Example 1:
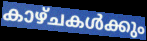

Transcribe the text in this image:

കാഴ്ചകൾക്കും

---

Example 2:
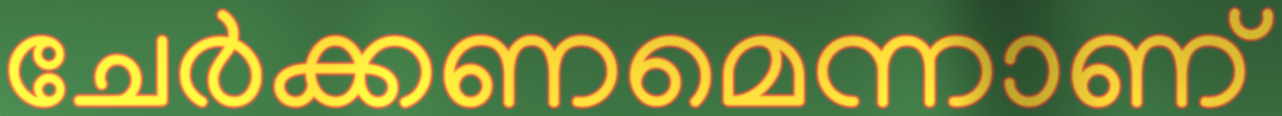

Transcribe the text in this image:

ചേർക്കണമെന്നാണ്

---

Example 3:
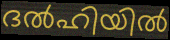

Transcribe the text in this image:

ദൽഹിയിൽ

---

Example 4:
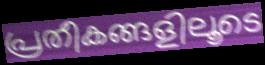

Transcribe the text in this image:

പ്രതീകങ്ങളിലൂടെ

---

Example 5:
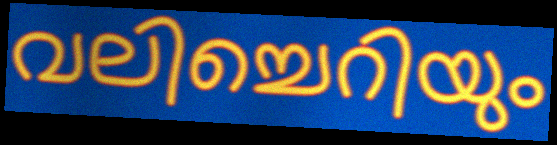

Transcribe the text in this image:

വലിച്ചെറിയും